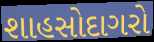
શાહસોદાગરો